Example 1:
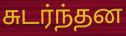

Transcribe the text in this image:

சுடர்ந்தன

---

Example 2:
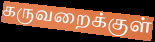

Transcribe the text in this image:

கருவறைக்குள்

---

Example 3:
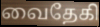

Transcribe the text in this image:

வைதேகி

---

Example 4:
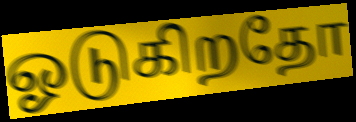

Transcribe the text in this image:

ஓடுகிறதோ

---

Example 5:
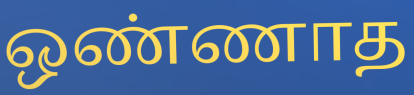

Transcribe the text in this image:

ஒண்ணாத